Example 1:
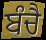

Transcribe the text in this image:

ਬੰਚੈ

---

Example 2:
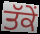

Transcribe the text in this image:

ਤੱਕੇਂ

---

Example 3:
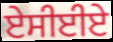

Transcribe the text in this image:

ਏਸੀਈਏ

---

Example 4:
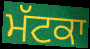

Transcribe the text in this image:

ਮੱਟਕਾ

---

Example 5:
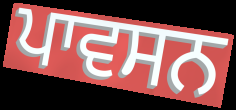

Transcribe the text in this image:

ਪਾਵਸਨ